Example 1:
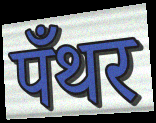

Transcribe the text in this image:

पँथर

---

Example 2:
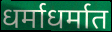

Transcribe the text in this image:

धर्माधर्मात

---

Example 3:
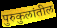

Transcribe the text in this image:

पुरुकुलांतील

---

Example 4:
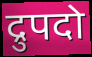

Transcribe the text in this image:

द्रुपदो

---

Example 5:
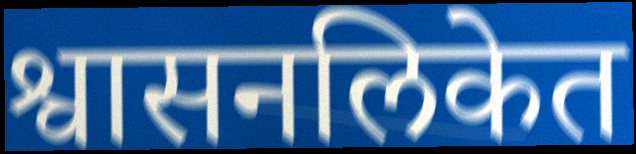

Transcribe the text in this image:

श्वासनलिकेत